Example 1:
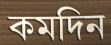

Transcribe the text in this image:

কমদিন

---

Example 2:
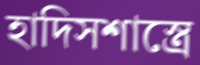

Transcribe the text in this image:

হাদিসশাস্ত্রে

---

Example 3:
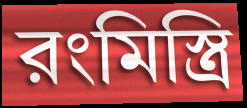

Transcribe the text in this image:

রংমিস্ত্রি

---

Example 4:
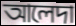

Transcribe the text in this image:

আলেদা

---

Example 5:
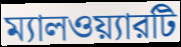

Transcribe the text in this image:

ম্যালওয়্যারটি